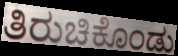
ತಿರುಚಿಕೊಂಡು